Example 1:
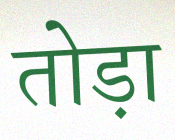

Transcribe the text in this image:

तोड़ा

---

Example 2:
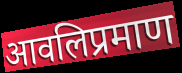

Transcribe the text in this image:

आवलिप्रमाण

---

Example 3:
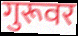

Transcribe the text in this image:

गुरूवर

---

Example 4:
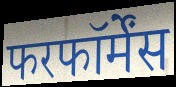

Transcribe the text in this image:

फरफॉर्मेंस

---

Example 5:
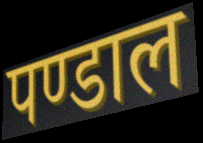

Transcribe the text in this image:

पण्डाल